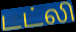
டட்லி